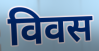
विवस